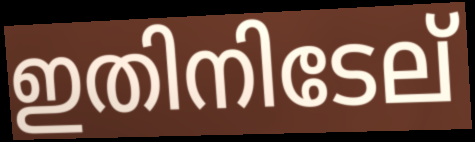
ഇതിനിടേല്